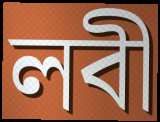
লবী